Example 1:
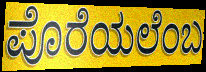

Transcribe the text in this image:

ಪೊರೆಯಲೆಂಬ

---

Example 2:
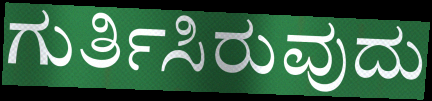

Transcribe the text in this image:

ಗುರ್ತಿಸಿರುವುದು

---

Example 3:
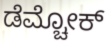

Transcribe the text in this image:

ಡೆಮ್ಚೋಕ್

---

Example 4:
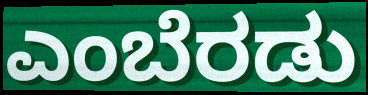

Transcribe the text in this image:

ಎಂಬೆರಡು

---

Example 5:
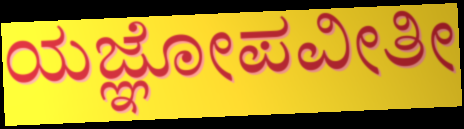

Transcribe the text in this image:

ಯಜ್ಞೋಪವೀತೀ